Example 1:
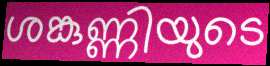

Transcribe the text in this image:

ശങ്കുണ്ണിയുടെ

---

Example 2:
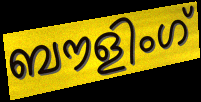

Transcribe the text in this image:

ബൗളിംഗ്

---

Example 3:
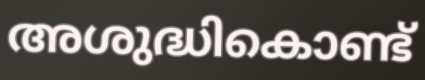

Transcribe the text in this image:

അശുദ്ധികൊണ്ട്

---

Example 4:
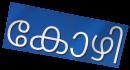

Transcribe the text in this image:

കോഴി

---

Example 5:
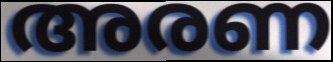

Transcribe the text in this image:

അരണ